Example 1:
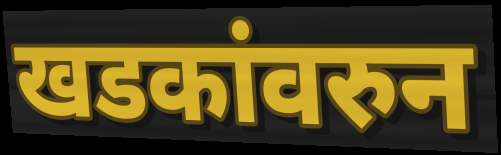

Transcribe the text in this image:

खडकांवरुन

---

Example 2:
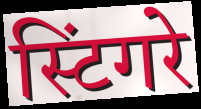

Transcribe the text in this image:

स्टिंगरे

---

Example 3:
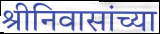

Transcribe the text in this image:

श्रीनिवासांच्या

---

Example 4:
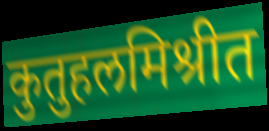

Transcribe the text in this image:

कुतुहलमिश्रीत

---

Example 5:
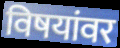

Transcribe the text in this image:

विषयांवर